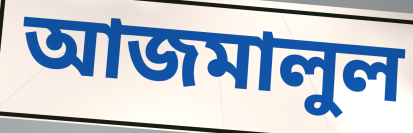
আজমালুল